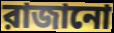
রাজানো